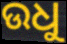
ଉଧୁ